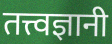
तत्त्वज्ञानी